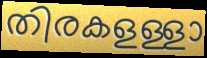
തിരകളള്ളാ